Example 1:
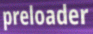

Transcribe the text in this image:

preloader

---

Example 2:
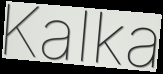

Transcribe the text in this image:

Kalka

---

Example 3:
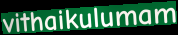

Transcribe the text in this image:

vithaikulumam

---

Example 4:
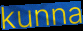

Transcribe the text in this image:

kunna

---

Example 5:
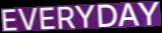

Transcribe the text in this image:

EVERYDAY